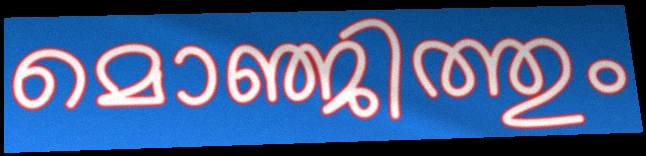
മൊഞ്ജിത്തും